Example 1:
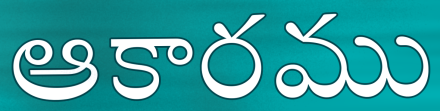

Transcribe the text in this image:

ఆకారము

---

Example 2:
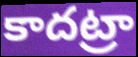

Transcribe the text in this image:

కాదట్రా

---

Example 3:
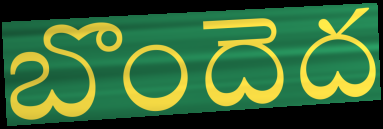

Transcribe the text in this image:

బొందెద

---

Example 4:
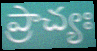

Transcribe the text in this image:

ప్రాచ్యః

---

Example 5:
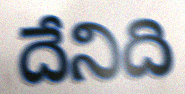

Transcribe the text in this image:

దేనిది